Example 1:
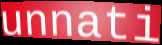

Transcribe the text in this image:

unnati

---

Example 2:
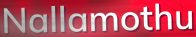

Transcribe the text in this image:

Nallamothu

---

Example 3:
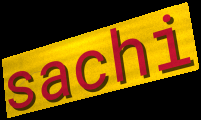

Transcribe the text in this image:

sachi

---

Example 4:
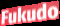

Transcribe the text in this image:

Fukudo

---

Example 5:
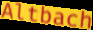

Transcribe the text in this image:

Altbach